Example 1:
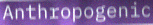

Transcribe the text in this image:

Anthropogenic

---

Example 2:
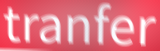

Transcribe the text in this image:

tranfer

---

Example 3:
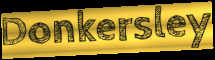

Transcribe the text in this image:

Donkersley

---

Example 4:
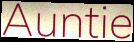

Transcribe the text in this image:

Auntie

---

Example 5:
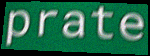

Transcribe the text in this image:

prate